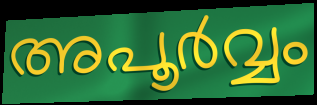
അപൂർവ്വം